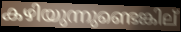
കഴിയുന്നുണ്ടെങ്കില്